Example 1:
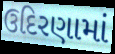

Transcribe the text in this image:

ઉદિરણામાં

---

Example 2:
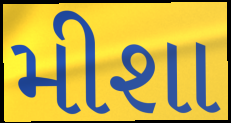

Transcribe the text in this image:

મીશા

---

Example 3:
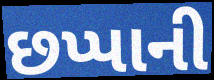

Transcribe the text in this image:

છપ્પાની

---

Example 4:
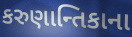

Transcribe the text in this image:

કરુણાન્તિકાના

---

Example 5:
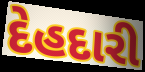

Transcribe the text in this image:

દેહદારી